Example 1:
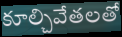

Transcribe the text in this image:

కూల్చివేతలతో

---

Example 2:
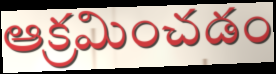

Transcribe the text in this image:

ఆక్రమించడం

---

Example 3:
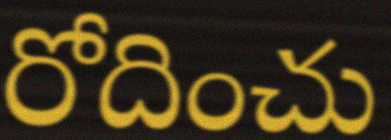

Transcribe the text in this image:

రోదించు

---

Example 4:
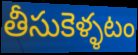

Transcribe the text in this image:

తీసుకెళ్ళటం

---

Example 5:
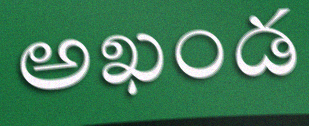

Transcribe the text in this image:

అఖండ